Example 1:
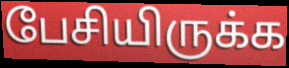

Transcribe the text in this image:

பேசியிருக்க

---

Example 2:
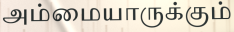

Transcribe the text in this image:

அம்மையாருக்கும்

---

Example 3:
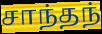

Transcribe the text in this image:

சாந்தந்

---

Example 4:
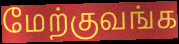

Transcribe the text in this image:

மேற்குவங்க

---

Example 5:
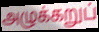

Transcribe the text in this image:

அழுக்கறுப்